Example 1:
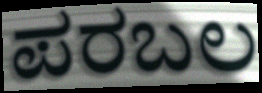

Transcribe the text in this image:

ಪರಬಲ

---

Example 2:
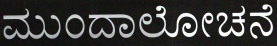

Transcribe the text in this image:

ಮುಂದಾಲೋಚನೆ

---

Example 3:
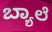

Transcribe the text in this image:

ಬ್ಯಾಲೆ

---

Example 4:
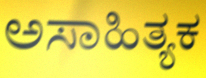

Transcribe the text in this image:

ಅಸಾಹಿತ್ಯಕ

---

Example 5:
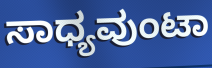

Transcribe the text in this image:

ಸಾಧ್ಯವುಂಟಾ